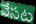
వేసట